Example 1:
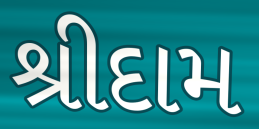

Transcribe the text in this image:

શ્રીદામ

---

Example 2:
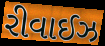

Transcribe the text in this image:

રીવાઈઝ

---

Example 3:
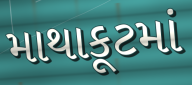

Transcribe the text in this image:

માથાકૂટમાં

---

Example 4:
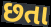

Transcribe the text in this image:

છતા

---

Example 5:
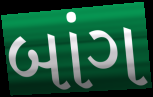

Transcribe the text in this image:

બાંગ